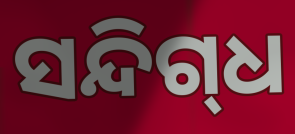
ସନ୍ଦିଗ୍‌ଧ